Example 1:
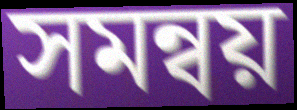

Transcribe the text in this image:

সমন্বয়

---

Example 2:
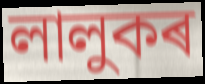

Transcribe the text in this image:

লালুকৰ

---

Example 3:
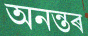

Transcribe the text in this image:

অনন্তৰ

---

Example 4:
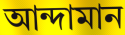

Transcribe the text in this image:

আন্দামান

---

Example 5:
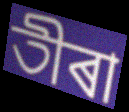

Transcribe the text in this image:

তীৰা